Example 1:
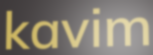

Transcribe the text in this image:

kavim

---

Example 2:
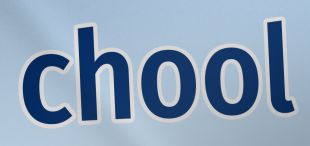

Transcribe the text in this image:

chool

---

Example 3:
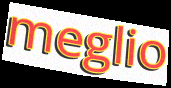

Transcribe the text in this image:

meglio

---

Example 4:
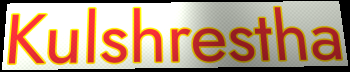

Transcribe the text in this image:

Kulshrestha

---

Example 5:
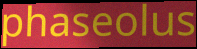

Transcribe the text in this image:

phaseolus